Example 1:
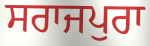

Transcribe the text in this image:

ਸਰਾਜਪੁਰਾ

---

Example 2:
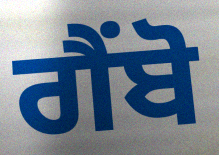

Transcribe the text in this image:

ਗੈਂਬੋ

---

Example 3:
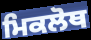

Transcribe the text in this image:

ਮਿਕਲੋਥ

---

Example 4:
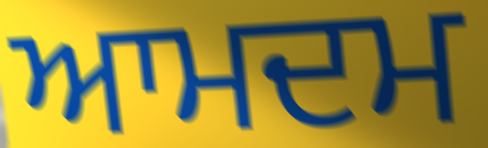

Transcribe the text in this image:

ਆਮਦਮ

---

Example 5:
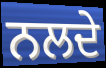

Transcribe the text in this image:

ਨਲਦੇ